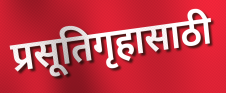
प्रसूतिगृहासाठी